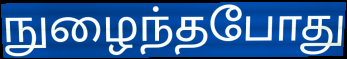
நுழைந்தபோது